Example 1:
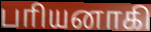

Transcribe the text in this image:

பரியனாகி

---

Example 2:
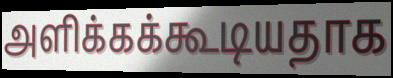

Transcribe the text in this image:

அளிக்கக்கூடியதாக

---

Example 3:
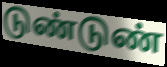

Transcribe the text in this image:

டுண்டுண்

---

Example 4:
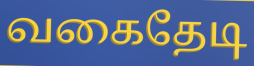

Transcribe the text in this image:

வகைதேடி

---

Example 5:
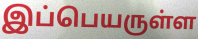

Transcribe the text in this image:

இப்பெயருள்ள